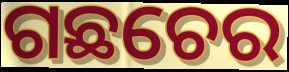
ଗଛଚେର